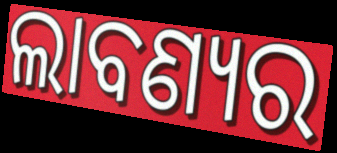
ଲାବଣ୍ୟର